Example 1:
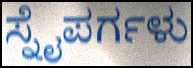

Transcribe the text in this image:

ಸ್ನೈಪರ್ಗಳು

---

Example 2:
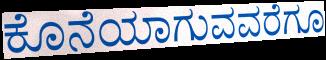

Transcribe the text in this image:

ಕೊನೆಯಾಗುವವರೆಗೂ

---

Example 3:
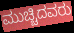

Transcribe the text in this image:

ಮುಚ್ಚಿದವರು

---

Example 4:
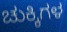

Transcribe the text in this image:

ಚುಕ್ಕಿಗಳ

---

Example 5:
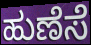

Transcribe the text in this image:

ಹುಣೆಸೆ